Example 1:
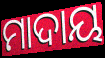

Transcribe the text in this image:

ମାଦାୟ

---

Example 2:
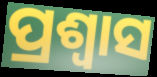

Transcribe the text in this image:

ପ୍ରଶ୍ୱାସ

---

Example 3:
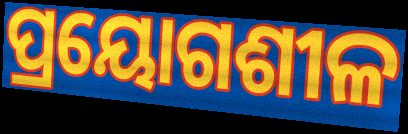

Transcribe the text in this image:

ପ୍ରୟୋଗଶୀଳ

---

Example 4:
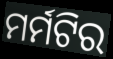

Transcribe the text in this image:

ମର୍ମଟିର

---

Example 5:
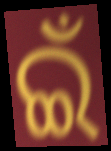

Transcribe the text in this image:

ଇଁ